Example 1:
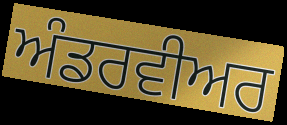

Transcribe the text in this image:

ਅੰਡਰਵੀਅਰ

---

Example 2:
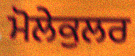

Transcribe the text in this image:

ਮੋਲੇਕੁਲਰ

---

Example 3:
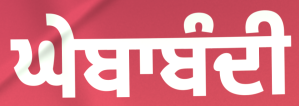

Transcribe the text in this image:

ਘੇਬਾਬੰਦੀ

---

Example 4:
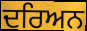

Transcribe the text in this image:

ਦਰਿਅਨ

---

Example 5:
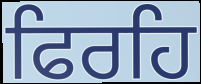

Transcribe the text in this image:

ਫਿਰਹਿ